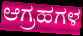
ಆಗ್ರಹಗಳ